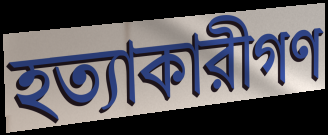
হত্যাকারীগণ